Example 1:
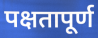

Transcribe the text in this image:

पक्षतापूर्ण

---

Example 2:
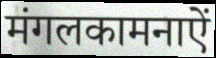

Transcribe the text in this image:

मंगलकामनाऐं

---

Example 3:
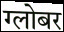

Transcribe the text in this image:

ग्लोबर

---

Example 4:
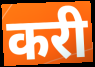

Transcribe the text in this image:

करी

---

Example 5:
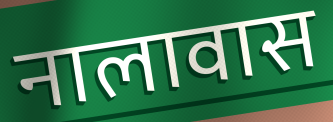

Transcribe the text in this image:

नालावास